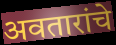
अवतारांचे